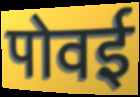
पोवई